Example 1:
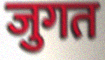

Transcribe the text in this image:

जुगत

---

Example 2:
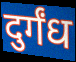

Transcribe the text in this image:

दुर्गंध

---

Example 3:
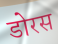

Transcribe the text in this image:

डोरस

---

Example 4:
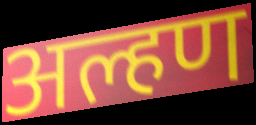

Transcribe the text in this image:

अल्हण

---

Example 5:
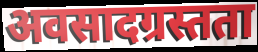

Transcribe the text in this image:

अवसादग्रस्तता